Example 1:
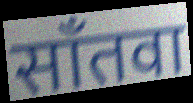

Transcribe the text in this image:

साँतवा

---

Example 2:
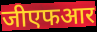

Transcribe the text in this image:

जीएफआर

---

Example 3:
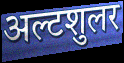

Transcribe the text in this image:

अल्टशुलर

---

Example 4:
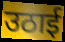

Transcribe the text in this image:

उठाई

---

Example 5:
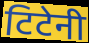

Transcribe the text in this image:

टिटेनी